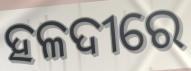
ହଳଦୀରେ